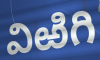
విఱిగి